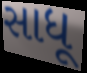
સાધૂ